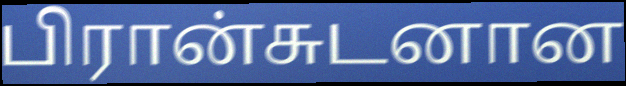
பிரான்சுடனான